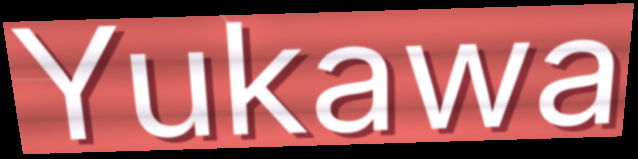
Yukawa